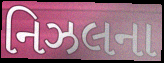
નિઝલના